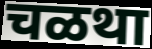
चळथा